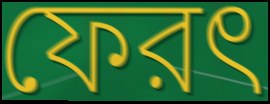
ফেরৎ